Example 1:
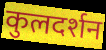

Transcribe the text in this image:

कुलदर्शन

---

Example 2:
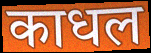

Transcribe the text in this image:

काधल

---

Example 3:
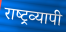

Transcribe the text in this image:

राष्‍ट्रव्‍यापी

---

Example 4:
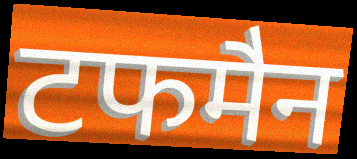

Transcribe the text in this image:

टफमैन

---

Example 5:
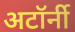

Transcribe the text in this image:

अटॉर्नी